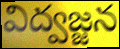
విద్వజ్జన